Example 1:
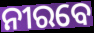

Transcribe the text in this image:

ନୀରବେ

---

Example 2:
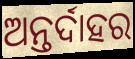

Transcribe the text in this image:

ଅନ୍ତର୍ଦାହର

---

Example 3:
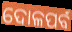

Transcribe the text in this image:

ଦୋଳପର୍ବ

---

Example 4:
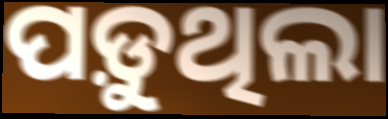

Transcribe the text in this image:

ପଡ଼ୁଥିଲା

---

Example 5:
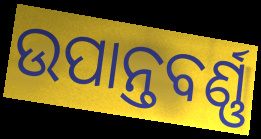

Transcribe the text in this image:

ଉପାନ୍ତବର୍ଣ୍ଣ